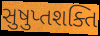
સુષુપ્તશક્તિ